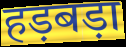
हड़बड़ा